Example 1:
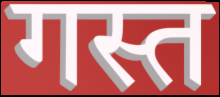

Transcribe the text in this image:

गस्त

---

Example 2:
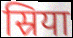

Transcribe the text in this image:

स्रिया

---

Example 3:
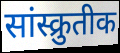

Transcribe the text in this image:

सांस्क्रुतीक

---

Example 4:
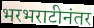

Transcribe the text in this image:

भरभराटीनंतर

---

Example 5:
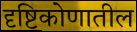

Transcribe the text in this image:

दृष्टिकोणातील